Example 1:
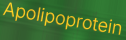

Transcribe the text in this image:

Apolipoprotein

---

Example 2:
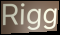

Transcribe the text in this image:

Rigg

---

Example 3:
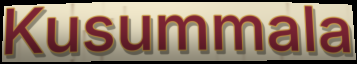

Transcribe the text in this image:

Kusummala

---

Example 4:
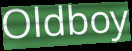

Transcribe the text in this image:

Oldboy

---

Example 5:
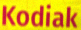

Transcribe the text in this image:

Kodiak